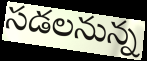
సడలనున్న